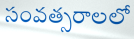
సంవత్సరాలలో